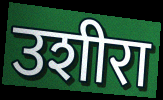
उशीरा